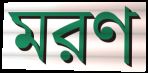
মরণ